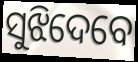
ସୁଝିଦେବେ